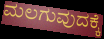
ಮಲಗುವುದಕ್ಕೆ